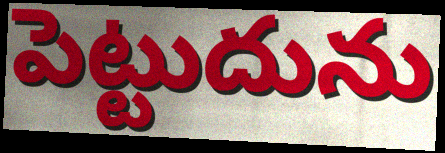
పెట్టుదును